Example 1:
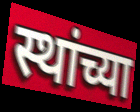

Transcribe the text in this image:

स्थांच्या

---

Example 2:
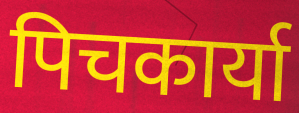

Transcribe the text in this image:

पिचकार्या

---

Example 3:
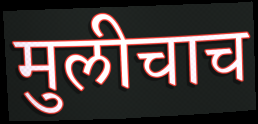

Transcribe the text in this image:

मुलीचाच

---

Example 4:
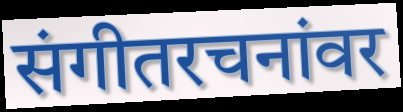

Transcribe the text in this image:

संगीतरचनांवर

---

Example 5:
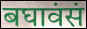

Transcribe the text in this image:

बघावंसं